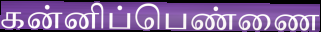
கன்னிப்பெண்ணை